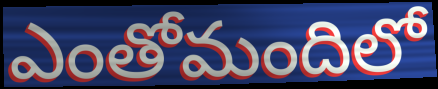
ఎంతోమందిలో